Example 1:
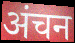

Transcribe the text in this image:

अंचन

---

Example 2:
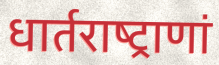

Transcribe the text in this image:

धार्तराष्ट्राणां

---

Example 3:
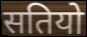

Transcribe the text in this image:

सतियो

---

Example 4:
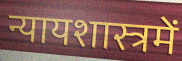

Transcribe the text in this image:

न्यायशास्त्रमें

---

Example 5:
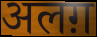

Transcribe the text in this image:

अलग़